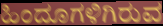
ಹಿಂದೂಗಳಿಗಿರುವ